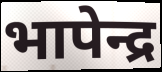
भापेन्द्र